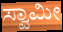
ಸ್ವಾಮೀ